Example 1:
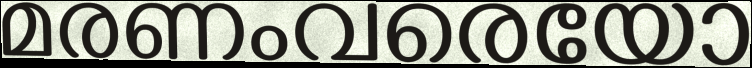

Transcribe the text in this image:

മരണംവരെയോ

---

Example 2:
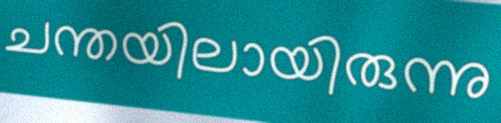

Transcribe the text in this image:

ചന്തയിലായിരുന്നു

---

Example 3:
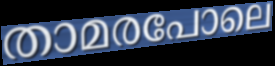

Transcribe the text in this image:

താമരപോലെ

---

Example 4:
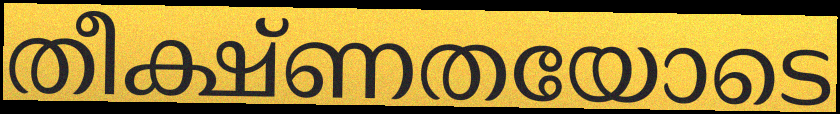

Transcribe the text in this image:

തീക്ഷ്ണതയോടെ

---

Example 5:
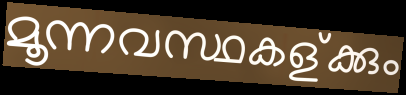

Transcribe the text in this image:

മൂന്നവസ്ഥകള്ക്കും